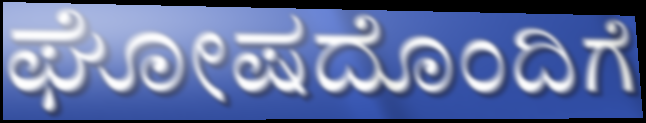
ಘೋಷದೊಂದಿಗೆ